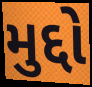
મુદ્દો